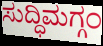
ಸುದ್ಧಿಮಗ್ಗಂ